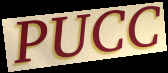
PUCC